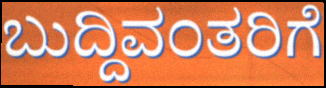
ಬುದ್ದಿವಂತರಿಗೆ